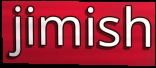
jimish